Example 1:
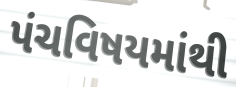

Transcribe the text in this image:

પંચવિષયમાંથી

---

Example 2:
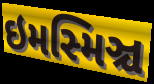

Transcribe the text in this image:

ઇમસ્મિઞ્ચ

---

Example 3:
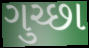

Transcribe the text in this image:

ગુચ્છા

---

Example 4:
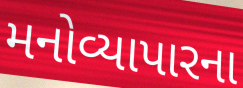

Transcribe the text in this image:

મનોવ્યાપારના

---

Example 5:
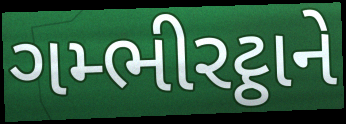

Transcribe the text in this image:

ગમ્ભીરટ્ઠાને